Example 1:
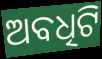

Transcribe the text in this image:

ଅବଧିଟି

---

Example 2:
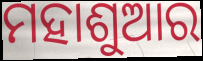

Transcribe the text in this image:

ମହାଶୁଆର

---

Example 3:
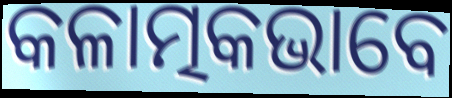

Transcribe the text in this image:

କଳାତ୍ମକଭାବେ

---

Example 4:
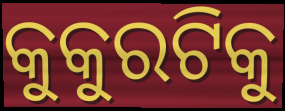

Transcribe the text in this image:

କୁକୁରଟିକୁ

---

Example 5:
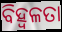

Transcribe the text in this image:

ବିହ୍ଵଳତା